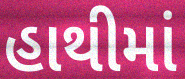
હાથીમાં